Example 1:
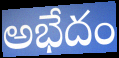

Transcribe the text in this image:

అభేదం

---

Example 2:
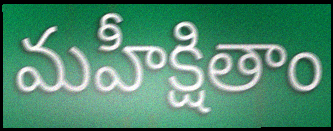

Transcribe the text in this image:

మహీక్షితాం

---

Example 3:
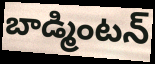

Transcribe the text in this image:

బాడ్మింటన్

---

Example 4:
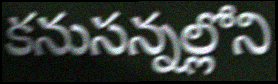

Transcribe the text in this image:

కనుసన్నల్లోని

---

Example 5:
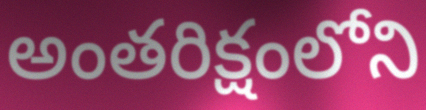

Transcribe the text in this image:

అంతరిక్షంలోని